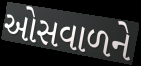
ઓસવાળને